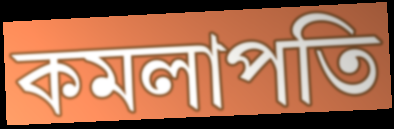
কমলাপতি